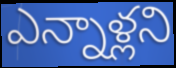
ఎన్నాళ్లని